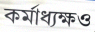
কর্মাধ্যক্ষও